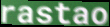
rastao